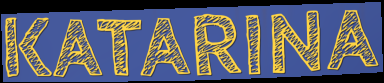
KATARINA